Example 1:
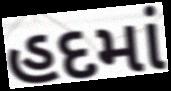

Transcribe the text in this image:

હદમાં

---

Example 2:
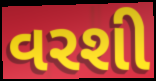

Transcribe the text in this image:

વરશી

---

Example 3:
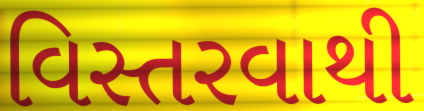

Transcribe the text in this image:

વિસ્તરવાથી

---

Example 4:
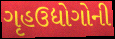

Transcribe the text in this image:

ગૃહઉદ્યોગોની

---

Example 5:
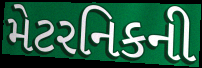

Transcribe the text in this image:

મેટરનિકની